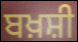
ਬਖ਼ਸ਼ੀ